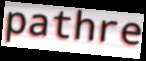
pathre